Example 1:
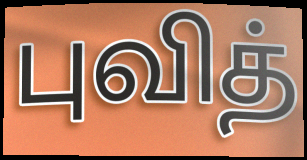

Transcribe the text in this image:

புவித்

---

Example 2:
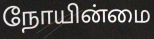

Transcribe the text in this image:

நோயின்மை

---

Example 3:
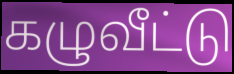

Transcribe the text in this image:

கழுவீட்டு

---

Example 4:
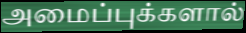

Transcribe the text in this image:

அமைப்புக்களால்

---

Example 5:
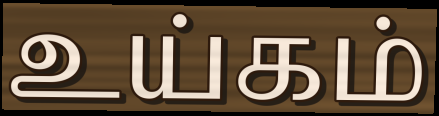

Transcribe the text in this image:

உய்கம்